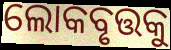
ଲୋକବୃତ୍ତକୁ